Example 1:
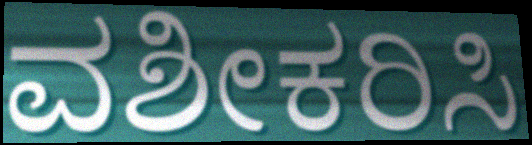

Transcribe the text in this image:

ವಶೀಕರಿಸಿ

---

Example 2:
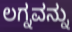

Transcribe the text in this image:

ಲಗ್ನವನ್ನು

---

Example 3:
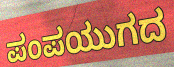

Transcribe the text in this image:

ಪಂಪಯುಗದ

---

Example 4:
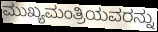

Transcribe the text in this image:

ಮುಖ್ಯಮಂತ್ರಿಯವರನ್ನು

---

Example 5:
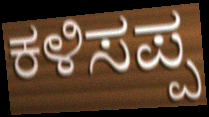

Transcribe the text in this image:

ಕಳಿಸಪ್ಪ